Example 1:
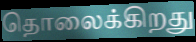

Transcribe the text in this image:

தொலைக்கிறது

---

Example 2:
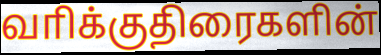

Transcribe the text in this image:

வரிக்குதிரைகளின்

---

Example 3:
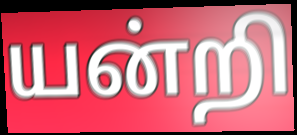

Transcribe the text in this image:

யன்றி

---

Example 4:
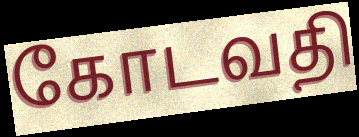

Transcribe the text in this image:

கோடவதி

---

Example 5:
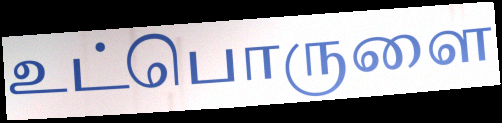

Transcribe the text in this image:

உட்பொருளை